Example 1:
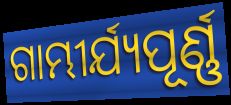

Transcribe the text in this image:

ଗାମ୍ଭୀର୍ଯ୍ୟପୂର୍ଣ୍ଣ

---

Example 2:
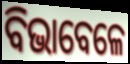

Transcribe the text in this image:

ବିଭାବେଳେ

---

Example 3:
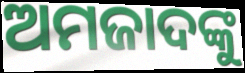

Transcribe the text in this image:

ଅମଜାଦଙ୍କୁ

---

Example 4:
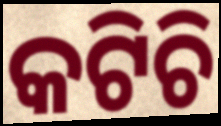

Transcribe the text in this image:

କଟିଚି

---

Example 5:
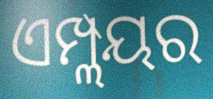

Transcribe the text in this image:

ଏମ୍ପ୍ଲୟର